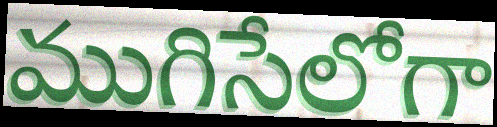
ముగిసేలోగా